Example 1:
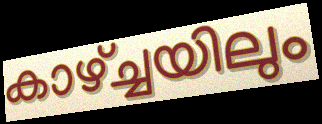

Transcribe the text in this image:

കാഴ്ച്ചയിലും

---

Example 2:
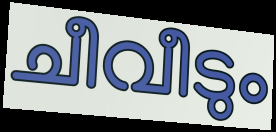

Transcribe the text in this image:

ചീവീടും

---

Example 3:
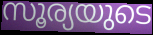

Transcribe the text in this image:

സൂര്യയുടെ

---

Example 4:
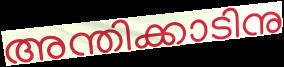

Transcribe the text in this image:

അന്തിക്കാടിനു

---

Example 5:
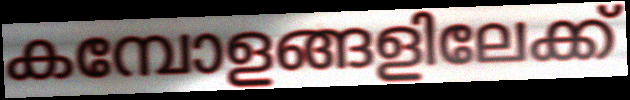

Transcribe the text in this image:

കമ്പോളങ്ങളിലേക്ക്